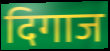
दिगाज